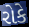
રોકે